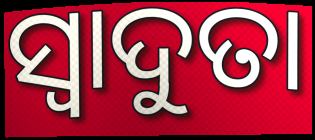
ସ୍ୱାଦୁତା